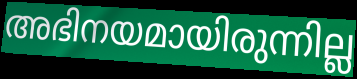
അഭിനയമായിരുന്നില്ല